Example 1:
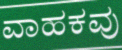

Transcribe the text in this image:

ವಾಹಕವು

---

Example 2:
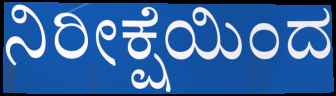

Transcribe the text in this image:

ನಿರೀಕ್ಷೆಯಿಂದ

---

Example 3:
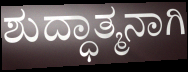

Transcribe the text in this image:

ಶುದ್ಧಾತ್ಮನಾಗಿ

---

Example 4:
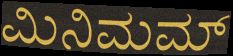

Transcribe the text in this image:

ಮಿನಿಮಮ್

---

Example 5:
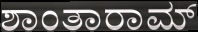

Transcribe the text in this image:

ಶಾಂತಾರಾಮ್